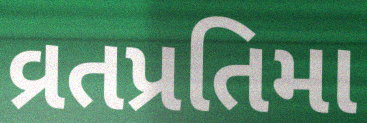
વ્રતપ્રતિમા